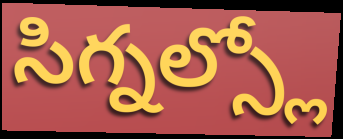
సిగ్నల్స్లో